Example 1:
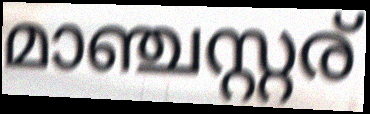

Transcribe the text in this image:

മാഞ്ചസ്റ്റര്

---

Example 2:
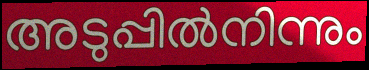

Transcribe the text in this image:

അടുപ്പിൽനിന്നും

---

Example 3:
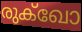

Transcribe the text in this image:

രുക്ഖോ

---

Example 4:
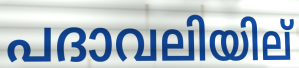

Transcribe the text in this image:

പദാവലിയില്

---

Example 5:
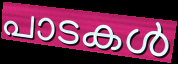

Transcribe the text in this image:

പാടകൾ